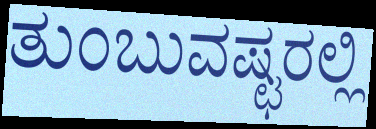
ತುಂಬುವಷ್ಟರಲ್ಲಿ